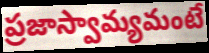
ప్రజాస్వామ్యమంటే